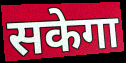
सकेगा